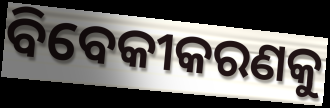
ବିବେକୀକରଣକୁ